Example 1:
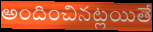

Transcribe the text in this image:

అందించినట్లయితే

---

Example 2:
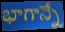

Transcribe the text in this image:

భాగాన్నే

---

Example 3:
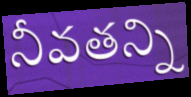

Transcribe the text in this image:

నీవతన్ని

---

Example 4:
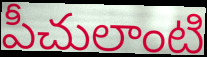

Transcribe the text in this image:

పీచులాంటి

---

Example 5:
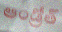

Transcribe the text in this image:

ఆండ్రోత్